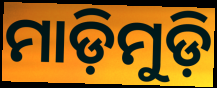
ମାଡ଼ିମୁଡ଼ି